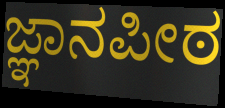
ಜ್ಞಾನಪೀಠ